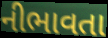
નીભાવતા